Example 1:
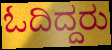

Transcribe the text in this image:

ಓದಿದ್ದರು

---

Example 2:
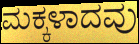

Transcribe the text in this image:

ಮಕ್ಕಳಾದವು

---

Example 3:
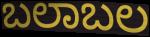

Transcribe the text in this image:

ಬಲಾಬಲ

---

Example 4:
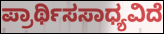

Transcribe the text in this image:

ಪ್ರಾರ್ಥಿಸಸಾಧ್ಯವಿದೆ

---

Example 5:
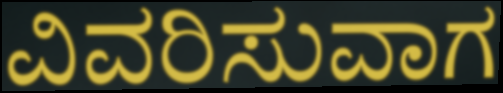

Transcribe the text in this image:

ವಿವರಿಸುವಾಗ